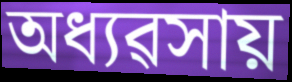
অধ্যৱসায়